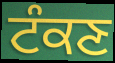
ਟੰਕਣ